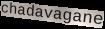
chadavagane